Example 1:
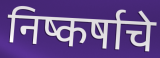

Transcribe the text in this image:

निष्कर्षाचे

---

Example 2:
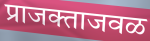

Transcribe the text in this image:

प्राजक्ताजवळ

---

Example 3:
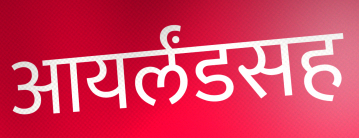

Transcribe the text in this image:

आयर्लंडसह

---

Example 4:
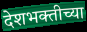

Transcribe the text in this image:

देशभक्तीच्या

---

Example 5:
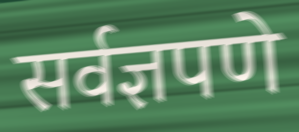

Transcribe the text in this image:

सर्वज्ञपणे